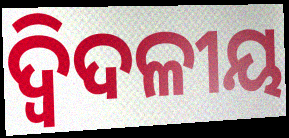
ଦ୍ବିଦଳୀୟ